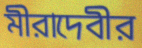
মীরাদেবীর